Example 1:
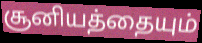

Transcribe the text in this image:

சூனியத்தையும்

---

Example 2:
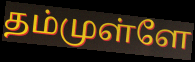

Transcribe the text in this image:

தம்முள்ளே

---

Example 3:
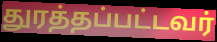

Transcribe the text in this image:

துரத்தப்பட்டவர்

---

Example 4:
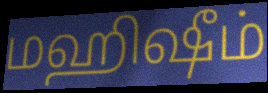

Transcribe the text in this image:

மஹிஷீம்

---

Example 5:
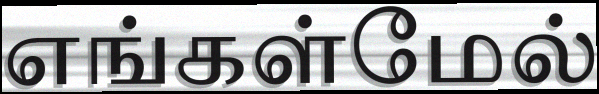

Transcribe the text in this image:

எங்கள்மேல்